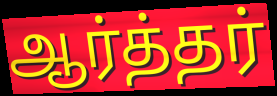
ஆர்த்தர்